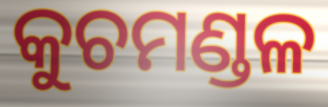
କୁଚମଣ୍ଡଳ